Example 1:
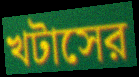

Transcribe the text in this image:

খটাসের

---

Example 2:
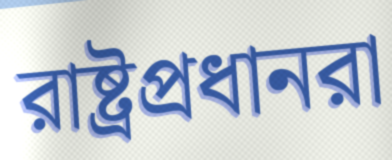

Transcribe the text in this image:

রাষ্ট্রপ্রধানরা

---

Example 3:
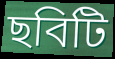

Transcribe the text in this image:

ছবিটি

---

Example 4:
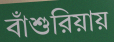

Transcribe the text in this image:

বাঁশুরিয়ায়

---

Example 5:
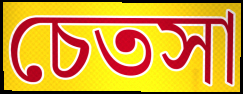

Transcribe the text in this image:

চেতসা